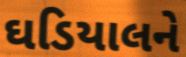
ઘડિયાલને